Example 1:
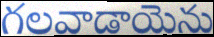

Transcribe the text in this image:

గలవాడాయెను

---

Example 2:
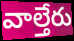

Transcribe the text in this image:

వాల్తేరు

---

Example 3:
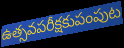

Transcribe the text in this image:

ఉత్సవపరీక్షకుపంపుట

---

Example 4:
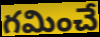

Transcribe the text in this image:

గమించే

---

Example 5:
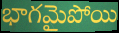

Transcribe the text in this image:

భాగమైపోయి